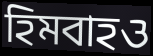
হিমবাহও